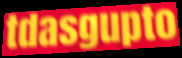
tdasgupto